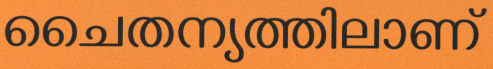
ചൈതന്യത്തിലാണ്